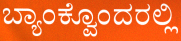
ಬ್ಯಾಂಕ್ವೊಂದರಲ್ಲಿ